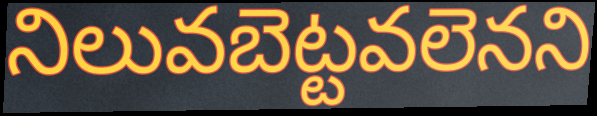
నిలువబెట్టవలెనని